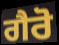
ਗੈਰੋ